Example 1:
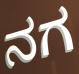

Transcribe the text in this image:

ನಗ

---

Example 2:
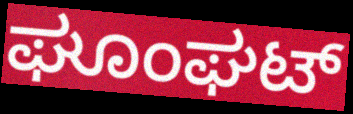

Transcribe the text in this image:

ಘೂಂಘಟ್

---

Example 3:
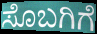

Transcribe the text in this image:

ಸೊಬಗಿಗೆ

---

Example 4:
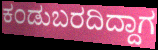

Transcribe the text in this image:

ಕಂಡುಬರದಿದ್ದಾಗ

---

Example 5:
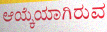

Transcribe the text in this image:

ಆಯ್ಕೆಯಾಗಿರುವ